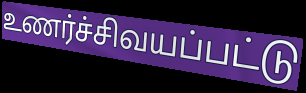
உணர்ச்சிவயப்பட்டு